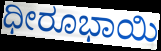
ಧೀರೂಭಾಯಿ